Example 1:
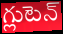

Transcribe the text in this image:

గ్లుటెన్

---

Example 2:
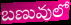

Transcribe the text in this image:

బణువులో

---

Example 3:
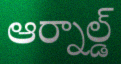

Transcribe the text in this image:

ఆర్నాల్డ్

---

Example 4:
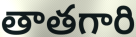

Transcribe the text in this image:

తాతగారి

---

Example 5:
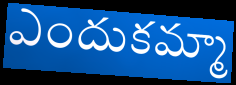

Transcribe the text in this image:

ఎందుకమ్మా